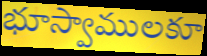
భూస్వాములకూ